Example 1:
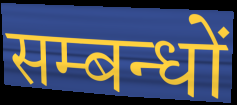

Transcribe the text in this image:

सम्बन्धों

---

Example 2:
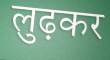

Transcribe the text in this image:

लुढ़कर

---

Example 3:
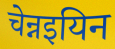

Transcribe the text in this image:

चेन्नइयिन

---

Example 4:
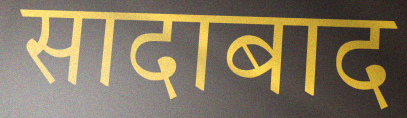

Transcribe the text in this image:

सादाबाद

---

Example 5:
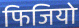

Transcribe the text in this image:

फिजियो